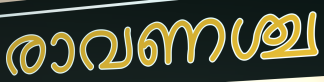
രാവണശ്ച